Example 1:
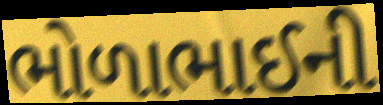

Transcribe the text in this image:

ભોળાભાઈની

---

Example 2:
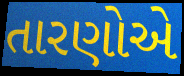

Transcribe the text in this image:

તારણોએ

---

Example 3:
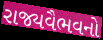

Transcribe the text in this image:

રાજ્યવૈભવનો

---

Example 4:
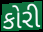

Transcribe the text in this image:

કોરી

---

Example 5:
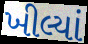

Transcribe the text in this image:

ખીલ્યાં